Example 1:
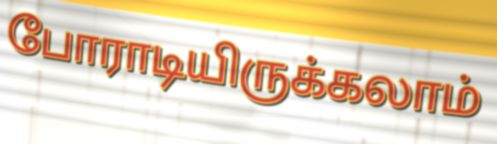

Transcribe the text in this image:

போராடியிருக்கலாம்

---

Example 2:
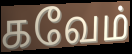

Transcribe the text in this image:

கவேம்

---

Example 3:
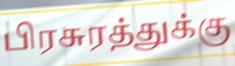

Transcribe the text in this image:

பிரசுரத்துக்கு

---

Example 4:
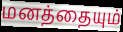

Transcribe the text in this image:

மனத்தையும்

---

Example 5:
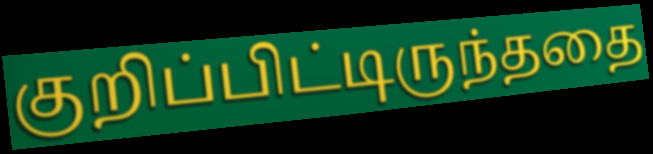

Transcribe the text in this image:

குறிப்பிட்டிருந்ததை